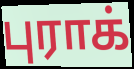
புராக்